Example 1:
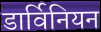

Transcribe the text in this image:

डार्विनियन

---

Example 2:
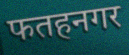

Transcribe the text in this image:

फतहनगर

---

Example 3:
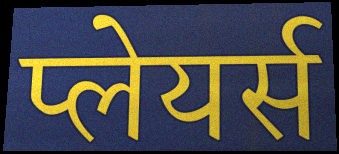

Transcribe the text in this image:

प्लेयर्स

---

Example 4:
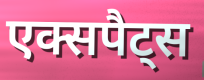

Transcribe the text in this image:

एक्सपैट्स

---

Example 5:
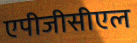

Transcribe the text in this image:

एपीजीसीएल